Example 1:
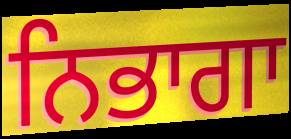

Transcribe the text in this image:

ਨਿਭਾਗਾ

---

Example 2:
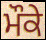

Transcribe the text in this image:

ਮੌਕੇ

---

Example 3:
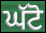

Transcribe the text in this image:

ਘੱਟੋ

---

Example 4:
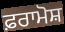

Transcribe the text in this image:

ਫ਼ਰਾਮੋਸ਼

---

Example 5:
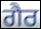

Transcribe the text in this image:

ਗੈਰ